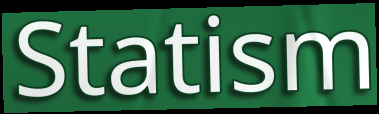
Statism